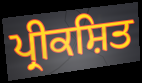
ਪ੍ਰੀਕਸ਼ਿਤ